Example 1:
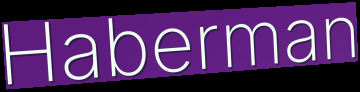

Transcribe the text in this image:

Haberman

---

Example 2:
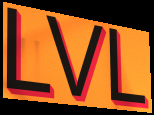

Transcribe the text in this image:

LVL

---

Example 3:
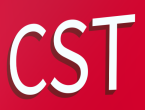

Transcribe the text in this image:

CST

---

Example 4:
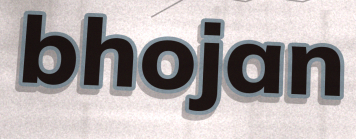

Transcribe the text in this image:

bhojan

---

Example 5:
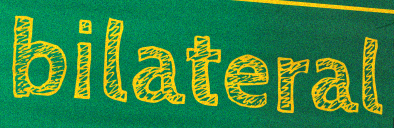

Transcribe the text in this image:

bilateral